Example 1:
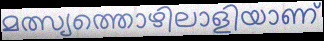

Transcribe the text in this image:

മത്സ്യത്തൊഴിലാളിയാണ്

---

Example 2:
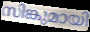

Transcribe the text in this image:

സിങ്കുമായി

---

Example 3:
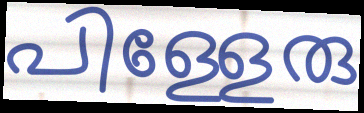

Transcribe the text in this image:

പിള്ളേരു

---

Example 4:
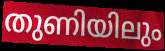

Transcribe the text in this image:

തുണിയിലും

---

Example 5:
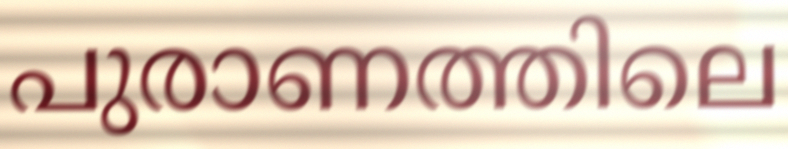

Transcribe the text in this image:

പുരാണത്തിലെ